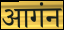
आगंन